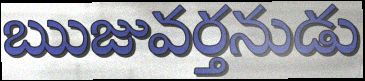
ఋజువర్తనుడు